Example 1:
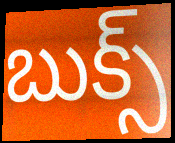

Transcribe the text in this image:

బుక్స్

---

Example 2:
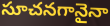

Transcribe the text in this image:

సూచనగానైనా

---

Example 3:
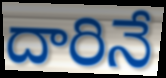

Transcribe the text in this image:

దారినే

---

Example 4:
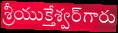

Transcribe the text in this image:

శ్రీయుక్తేశ్వర్‌గారు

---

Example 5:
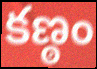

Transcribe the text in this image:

కణ్ఠం